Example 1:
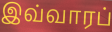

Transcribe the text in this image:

இவ்வாரப்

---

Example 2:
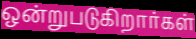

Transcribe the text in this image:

ஒன்றுபடுகிறார்கள்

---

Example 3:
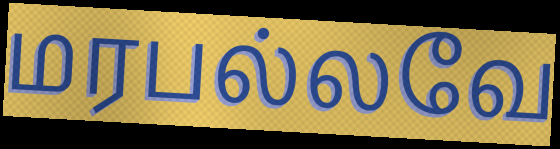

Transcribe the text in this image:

மரபல்லவே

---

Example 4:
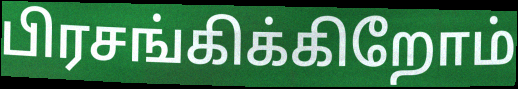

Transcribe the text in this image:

பிரசங்கிக்கிறோம்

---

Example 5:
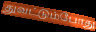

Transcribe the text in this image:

துவட்டும்போது